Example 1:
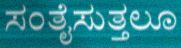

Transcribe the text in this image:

ಸಂತೈಸುತ್ತಲೂ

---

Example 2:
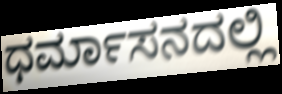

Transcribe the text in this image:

ಧರ್ಮಾಸನದಲ್ಲಿ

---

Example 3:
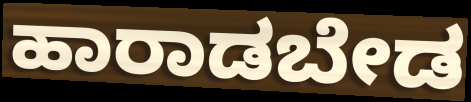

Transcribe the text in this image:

ಹಾರಾಡಬೇಡ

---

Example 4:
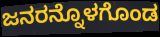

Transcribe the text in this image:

ಜನರನ್ನೊಳಗೊಂಡ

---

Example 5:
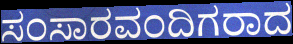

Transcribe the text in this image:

ಸಂಸಾರವಂದಿಗರಾದ